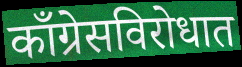
काँग्रेसविरोधात